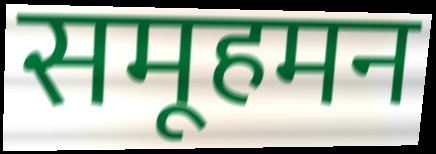
समूहमन